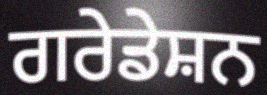
ਗਰੇਡੇਸ਼ਨ